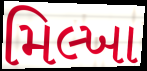
મિલ્ખા